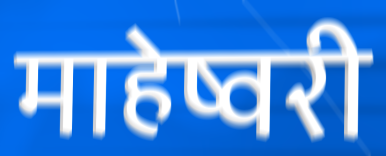
माहेष्वरी